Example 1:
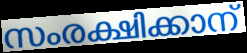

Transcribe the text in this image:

സംരക്ഷിക്കാന്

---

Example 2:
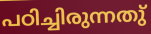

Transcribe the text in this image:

പഠിച്ചിരുന്നതു്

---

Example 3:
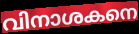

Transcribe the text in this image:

വിനാശകനെ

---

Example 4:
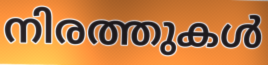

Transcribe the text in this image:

നിരത്തുകൾ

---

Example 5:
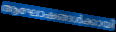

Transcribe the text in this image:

ആഘോഷങ്ങൾക്കായി